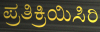
ಪ್ರತಿಕ್ರಿಯಿಸಿರಿ